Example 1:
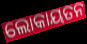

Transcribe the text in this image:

ଲୋକାୟତନ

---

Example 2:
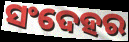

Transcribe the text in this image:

ସଂଦେହର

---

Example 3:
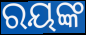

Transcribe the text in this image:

ରୟଙ୍କ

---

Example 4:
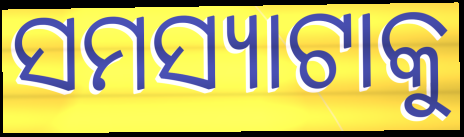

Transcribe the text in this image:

ସମସ୍ୟାଟାକୁ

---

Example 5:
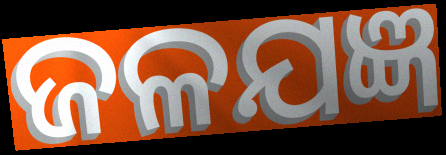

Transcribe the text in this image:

ଜଳଯଜ୍ଞ